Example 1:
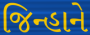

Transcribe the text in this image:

જિન્હાને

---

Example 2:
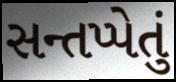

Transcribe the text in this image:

સન્તપ્પેતું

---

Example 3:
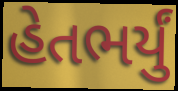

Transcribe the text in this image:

હેતભર્યું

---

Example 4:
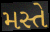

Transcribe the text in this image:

મસ્તે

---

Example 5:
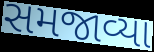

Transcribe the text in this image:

સમજાવ્યા